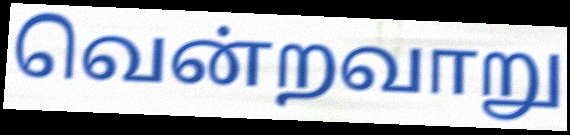
வென்றவாறு